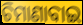
ଚିମାଣାବାଇ